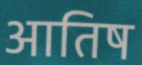
आतिष